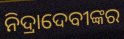
ନିଦ୍ରାଦେବୀଙ୍କର